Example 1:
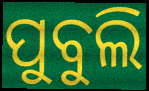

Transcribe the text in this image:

ପୁବୁଲି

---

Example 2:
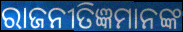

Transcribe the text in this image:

ରାଜନୀତିଜ୍ଞମାନଙ୍କ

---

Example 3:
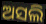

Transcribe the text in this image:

ଅସଲି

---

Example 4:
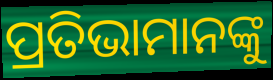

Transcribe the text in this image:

ପ୍ରତିଭାମାନଙ୍କୁ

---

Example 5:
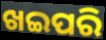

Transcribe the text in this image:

ଖଇପରି